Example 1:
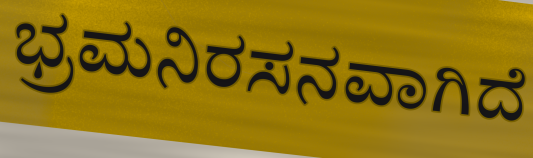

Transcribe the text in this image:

ಭ್ರಮನಿರಸನವಾಗಿದೆ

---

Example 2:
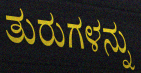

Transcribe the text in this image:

ತುರುಗಳನ್ನು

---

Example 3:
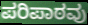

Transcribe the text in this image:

ಪರಿಪಾಠವು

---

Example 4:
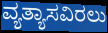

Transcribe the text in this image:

ವ್ಯತ್ಯಾಸವಿರಲು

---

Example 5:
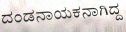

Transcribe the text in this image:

ದಂಡನಾಯಕನಾಗಿದ್ದ